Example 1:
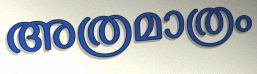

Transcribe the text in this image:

അത്രമാത്രം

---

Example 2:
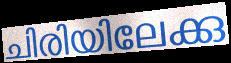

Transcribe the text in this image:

ചിരിയിലേക്കു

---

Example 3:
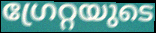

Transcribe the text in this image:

ഗ്രേറ്റയുടെ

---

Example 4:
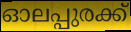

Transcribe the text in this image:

ഓലപ്പുരക്ക്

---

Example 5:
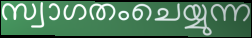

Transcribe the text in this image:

സ്വാഗതംചെയ്യുന്ന